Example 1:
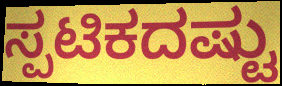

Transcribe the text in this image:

ಸ್ಪಟಿಕದಷ್ಟು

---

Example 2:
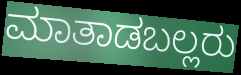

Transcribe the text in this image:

ಮಾತಾಡಬಲ್ಲರು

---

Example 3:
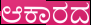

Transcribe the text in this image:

ಆಕಾರದ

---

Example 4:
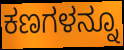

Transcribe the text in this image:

ಕಣಗಳನ್ನೂ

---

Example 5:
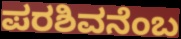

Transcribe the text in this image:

ಪರಶಿವನೆಂಬ